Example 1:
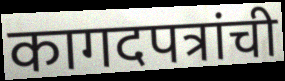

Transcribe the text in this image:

कागदपत्रांची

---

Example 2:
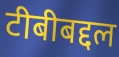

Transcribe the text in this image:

टीबीबद्दल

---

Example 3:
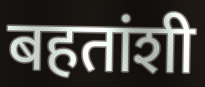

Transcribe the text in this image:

बहतांशी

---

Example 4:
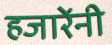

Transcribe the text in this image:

हजारेंनी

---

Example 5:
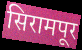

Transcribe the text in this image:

सिरामपूर